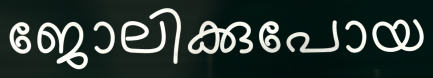
ജോലിക്കുപോയ